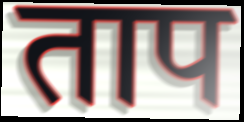
ताप